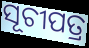
ସୂଚୀପତ୍ର